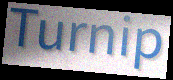
Turnip